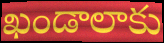
ఖండాలాకు